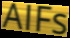
AIFs